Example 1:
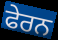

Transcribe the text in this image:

ਫੇਰਨ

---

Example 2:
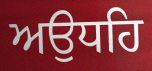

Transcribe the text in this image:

ਅਉਧਹਿ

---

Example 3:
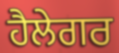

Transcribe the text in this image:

ਹੈਲੇਗਰ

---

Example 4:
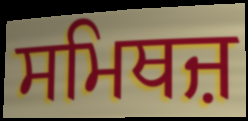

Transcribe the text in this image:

ਸਮਿਥਜ਼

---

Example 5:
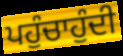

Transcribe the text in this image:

ਪਹੁੰਚਾਹੁੰਦੀ